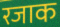
रजाक